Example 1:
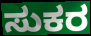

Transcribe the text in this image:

ಸುಕರ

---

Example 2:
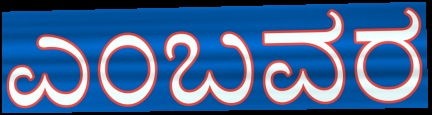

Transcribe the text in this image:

ಎಂಬವರ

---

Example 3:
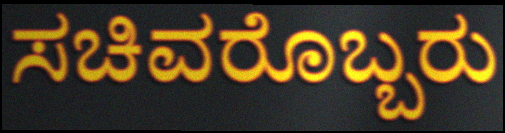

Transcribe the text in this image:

ಸಚಿವರೊಬ್ಬರು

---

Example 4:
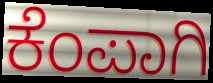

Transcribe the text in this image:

ಕೆಂಪಾಗಿ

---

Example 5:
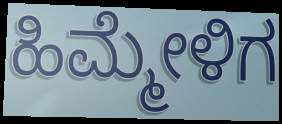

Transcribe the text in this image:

ಹಿಮ್ಮೇಳಿಗ